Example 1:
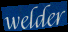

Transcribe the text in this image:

welder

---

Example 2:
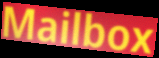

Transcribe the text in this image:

Mailbox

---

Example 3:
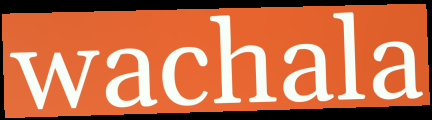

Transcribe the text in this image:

wachala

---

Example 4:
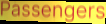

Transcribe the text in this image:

Passengers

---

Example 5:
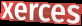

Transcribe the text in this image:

xerces